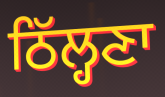
ਠਿੱਲ੍ਹਣਾ